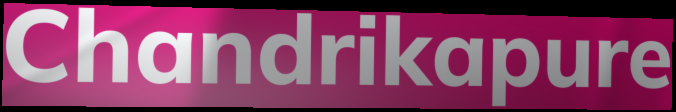
Chandrikapure